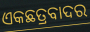
ଏକଛତ୍ରବାଦର